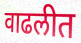
वाढलीत